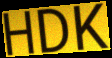
HDK